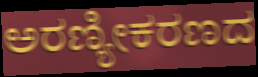
ಅರಣ್ಯೀಕರಣದ